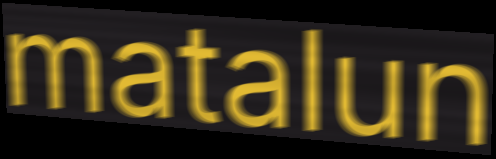
matalun